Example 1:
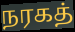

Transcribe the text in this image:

நரகத்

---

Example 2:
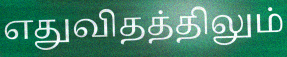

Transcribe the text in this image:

எதுவிதத்திலும்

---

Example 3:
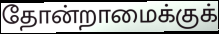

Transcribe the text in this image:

தோன்றாமைக்குக்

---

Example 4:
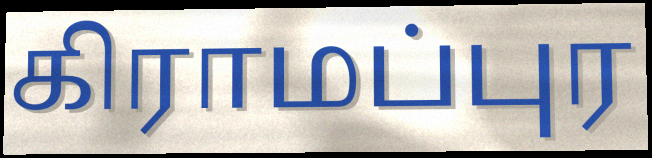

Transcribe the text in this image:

கிராமப்புர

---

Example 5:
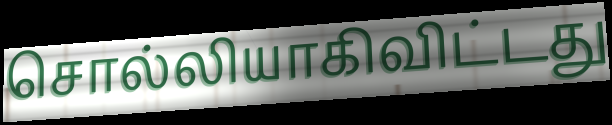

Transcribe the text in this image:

சொல்லியாகிவிட்டது